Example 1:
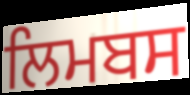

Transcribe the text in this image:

ਲਿਮਬਸ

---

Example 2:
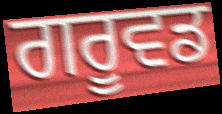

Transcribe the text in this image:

ਗਰੂਵਡ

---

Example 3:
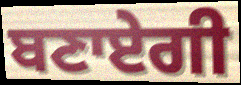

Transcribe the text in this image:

ਬਣਾਏਗੀ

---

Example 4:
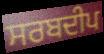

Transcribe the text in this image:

ਸਰਬਦੀਪ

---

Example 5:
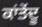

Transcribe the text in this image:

ਕਾਂਤੇਂਦੂ